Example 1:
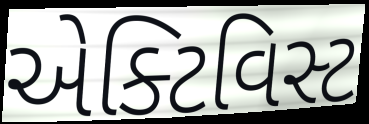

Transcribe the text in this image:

એક્ટિવિસ્ટ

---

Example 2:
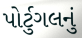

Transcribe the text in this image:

પોર્ટુગલનું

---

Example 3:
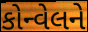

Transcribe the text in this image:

કોન્વેલને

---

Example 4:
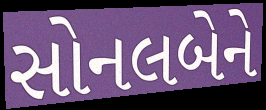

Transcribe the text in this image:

સોનલબેને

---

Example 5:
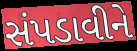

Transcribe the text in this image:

સંપડાવીને